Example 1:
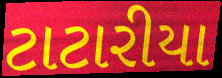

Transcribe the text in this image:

ટાટારીયા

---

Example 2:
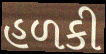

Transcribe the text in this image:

હળકી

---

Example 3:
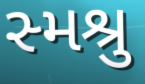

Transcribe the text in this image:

સ્મશ્રુ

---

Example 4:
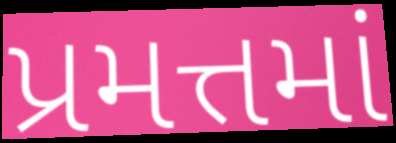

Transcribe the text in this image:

પ્રમત્તમાં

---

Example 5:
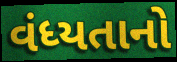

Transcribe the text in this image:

વંધ્યતાનો